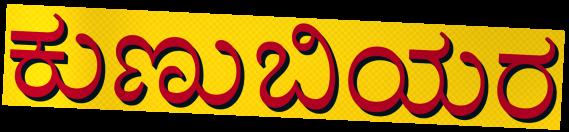
ಕುಣುಬಿಯರ